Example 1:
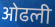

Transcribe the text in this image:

ओढली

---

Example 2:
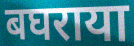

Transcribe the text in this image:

बघराया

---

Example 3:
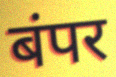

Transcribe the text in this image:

बंपर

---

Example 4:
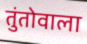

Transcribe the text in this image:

तुंतोवाला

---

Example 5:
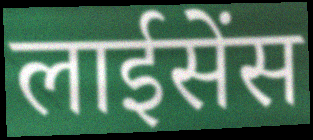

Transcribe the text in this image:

लाईसेंस